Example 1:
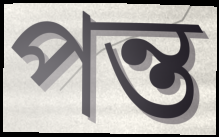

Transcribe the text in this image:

পন্ত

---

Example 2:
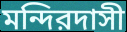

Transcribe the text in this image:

মন্দিরদাসী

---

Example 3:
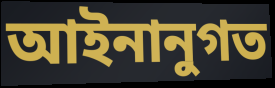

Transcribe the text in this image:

আইনানুগত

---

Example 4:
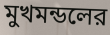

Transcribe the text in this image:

মুখমন্ডলের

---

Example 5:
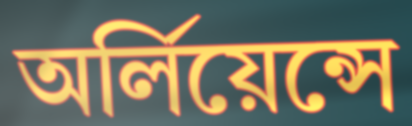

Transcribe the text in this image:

অর্লিয়েন্সে